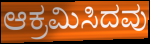
ಆಕ್ರಮಿಸಿದವು